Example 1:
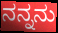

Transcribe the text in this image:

ನನ್ನನು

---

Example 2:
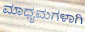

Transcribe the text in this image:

ಮಾಧ್ಯಮಗಳಾಗಿ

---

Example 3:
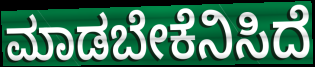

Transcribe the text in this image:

ಮಾಡಬೇಕೆನಿಸಿದೆ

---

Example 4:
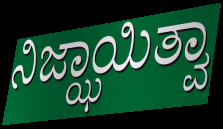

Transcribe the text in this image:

ನಿಜ್ಝಾಯಿತ್ವಾ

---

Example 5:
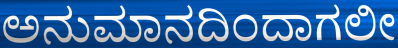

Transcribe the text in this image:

ಅನುಮಾನದಿಂದಾಗಲೀ